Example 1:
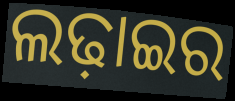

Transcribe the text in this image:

ଲଢ଼ାଇର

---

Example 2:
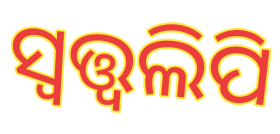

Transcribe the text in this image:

ସ୍ୱତ୍ତ୍ୱଲିପି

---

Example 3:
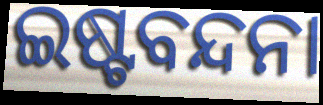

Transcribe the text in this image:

ଇଷ୍ଟବନ୍ଦନା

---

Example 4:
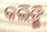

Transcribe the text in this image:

କଲିଙ୍ଗି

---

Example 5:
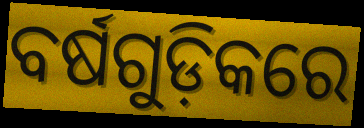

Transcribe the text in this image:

ବର୍ଷଗୁଡ଼ିକରେ